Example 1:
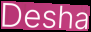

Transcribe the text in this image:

Desha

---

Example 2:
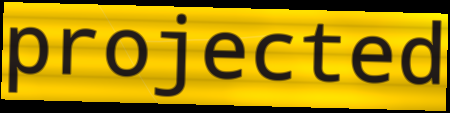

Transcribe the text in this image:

projected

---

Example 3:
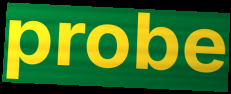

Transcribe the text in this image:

probe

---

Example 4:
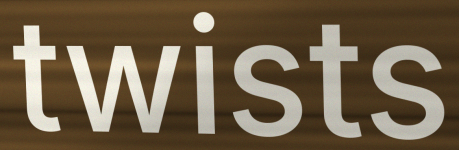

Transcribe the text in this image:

twists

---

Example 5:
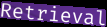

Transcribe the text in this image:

Retrieval